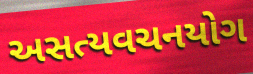
અસત્યવચનયોગ